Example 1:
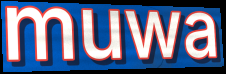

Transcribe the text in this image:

muwa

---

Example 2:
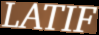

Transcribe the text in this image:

LATIF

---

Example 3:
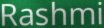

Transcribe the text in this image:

Rashmi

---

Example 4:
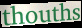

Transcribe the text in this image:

thouths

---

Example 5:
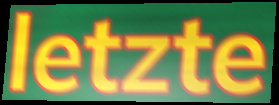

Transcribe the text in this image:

letzte